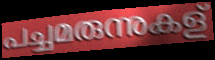
പച്ചമരുന്നുകള്